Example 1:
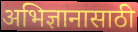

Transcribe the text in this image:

अभिज्ञानासाठी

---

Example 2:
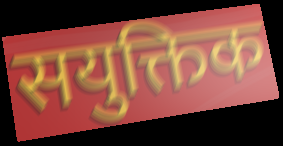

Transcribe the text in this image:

सयुक्तिक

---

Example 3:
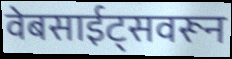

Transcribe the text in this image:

वेबसाईट्सवरून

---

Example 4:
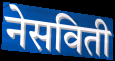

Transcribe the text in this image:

नेसविती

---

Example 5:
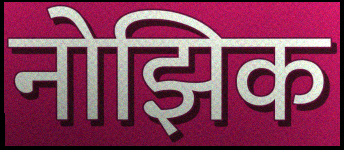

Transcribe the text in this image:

नोझिक